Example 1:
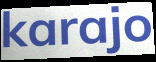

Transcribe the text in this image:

karajo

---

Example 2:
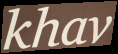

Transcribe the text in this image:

khav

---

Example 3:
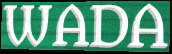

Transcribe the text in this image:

WADA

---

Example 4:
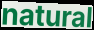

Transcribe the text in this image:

natural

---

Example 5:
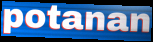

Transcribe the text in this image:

potanan